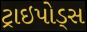
ટ્રાઇપોડ્સ